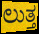
ಲುತ್ತ